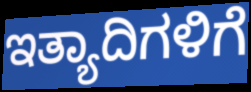
ಇತ್ಯಾದಿಗಳಿಗೆ